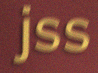
jss